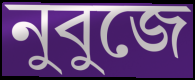
নুবুজে